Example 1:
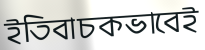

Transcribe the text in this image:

ইতিবাচকভাবেই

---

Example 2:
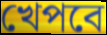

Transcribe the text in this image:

খেপবে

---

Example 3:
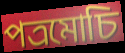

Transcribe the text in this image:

পত্রমোচি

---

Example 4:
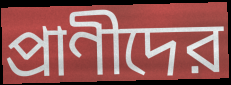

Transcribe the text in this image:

প্রাণীদের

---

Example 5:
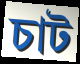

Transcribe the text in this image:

চাট